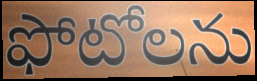
ఫోటోలను